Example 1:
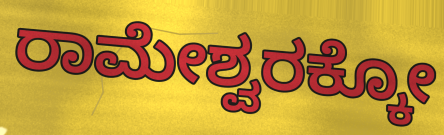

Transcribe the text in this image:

ರಾಮೇಶ್ವರಕ್ಕೋ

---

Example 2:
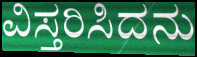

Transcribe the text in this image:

ವಿಸ್ತರಿಸಿದನು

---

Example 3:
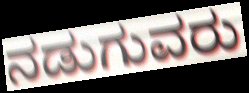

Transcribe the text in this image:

ನಡುಗುವರು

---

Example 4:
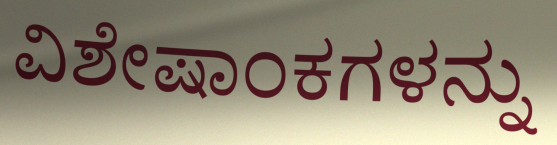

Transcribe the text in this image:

ವಿಶೇಷಾಂಕಗಳನ್ನು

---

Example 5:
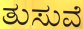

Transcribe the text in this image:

ತುಸುವೆ